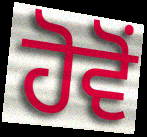
ਹੋਵੋਂ